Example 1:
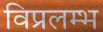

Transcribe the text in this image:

विप्रलम्भ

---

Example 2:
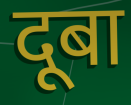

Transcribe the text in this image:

दूबा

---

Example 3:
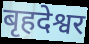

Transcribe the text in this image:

बृहदेश्वर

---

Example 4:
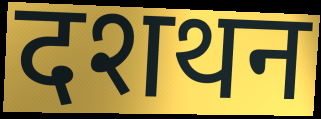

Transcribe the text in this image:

दशथन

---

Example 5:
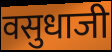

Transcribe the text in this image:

वसुधाजी